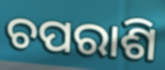
ଚପରାଶି